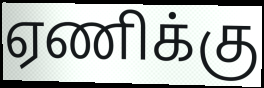
ஏணிக்கு